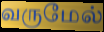
வருமேல்